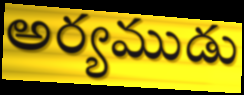
అర్యముడు